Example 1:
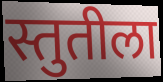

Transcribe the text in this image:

स्तुतीला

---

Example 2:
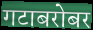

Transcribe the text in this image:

गटाबरोबर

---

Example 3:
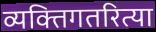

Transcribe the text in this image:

व्यक्तिगतरित्या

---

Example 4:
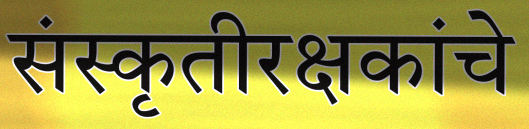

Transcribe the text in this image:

संस्कृतीरक्षकांचे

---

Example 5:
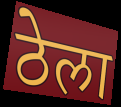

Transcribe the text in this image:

ठेला